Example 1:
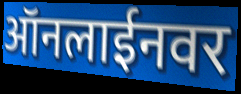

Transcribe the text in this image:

ऑनलाईनवर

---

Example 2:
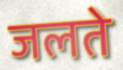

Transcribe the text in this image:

जलते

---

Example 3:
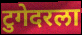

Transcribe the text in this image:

टुगेदरला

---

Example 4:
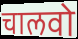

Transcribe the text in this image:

चालवो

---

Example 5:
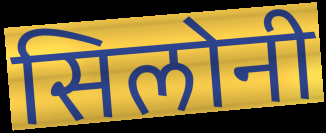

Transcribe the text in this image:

सिलोनी